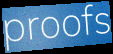
proofs